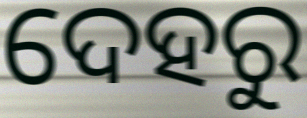
ଦେହରୁ